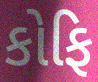
કોફિ